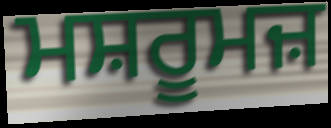
ਮਸ਼ਰੂਮਜ਼